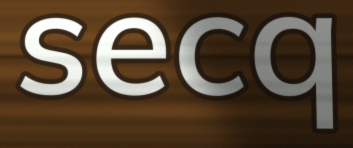
secq